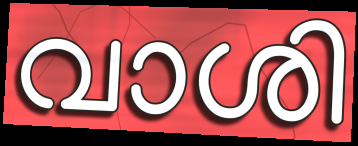
വാശി